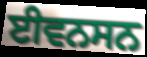
ਈਵਨਸਨ